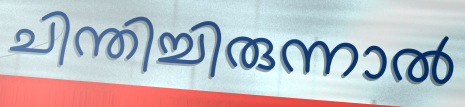
ചിന്തിച്ചിരുന്നാൽ